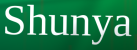
Shunya